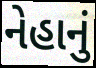
નેહાનું